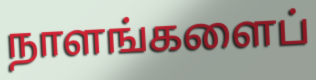
நாளங்களைப்